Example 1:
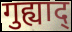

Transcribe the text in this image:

गुह्याद्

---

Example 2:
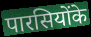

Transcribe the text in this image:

पारसियोंके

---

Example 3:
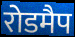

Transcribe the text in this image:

रोडमैप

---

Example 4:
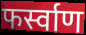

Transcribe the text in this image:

फर्स्वाण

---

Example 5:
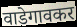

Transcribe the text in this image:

वाडेगावकर